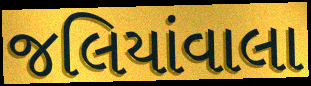
જલિયાંવાલા